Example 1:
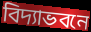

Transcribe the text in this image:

বিদ্যাভবনে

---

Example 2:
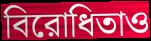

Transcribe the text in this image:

বিরোধিতাও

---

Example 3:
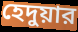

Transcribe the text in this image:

হেদুয়ার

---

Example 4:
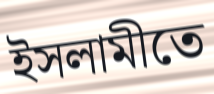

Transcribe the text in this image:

ইসলামীতে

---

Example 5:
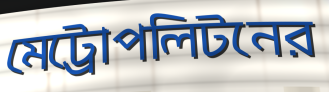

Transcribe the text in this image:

মেট্রোপলিটনের